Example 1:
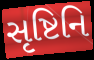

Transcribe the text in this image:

સૃષ્ટિનિ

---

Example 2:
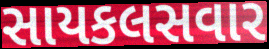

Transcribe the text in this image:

સાયકલસવાર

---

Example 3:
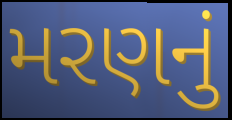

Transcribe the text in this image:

મરણનું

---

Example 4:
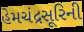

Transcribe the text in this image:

હેમચંદ્રસૂરિની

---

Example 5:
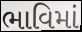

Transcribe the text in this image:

ભાવિમાં